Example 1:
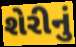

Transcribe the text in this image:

શેરીનું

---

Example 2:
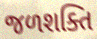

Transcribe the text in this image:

જળશક્તિ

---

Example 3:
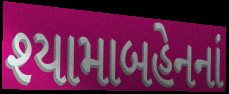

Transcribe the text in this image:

શ્યામાબહેનનાં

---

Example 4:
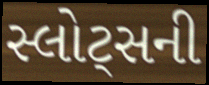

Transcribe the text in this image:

સ્લોટ્સની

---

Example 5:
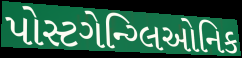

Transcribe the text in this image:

પોસ્ટગેન્ગ્લિઓનિક